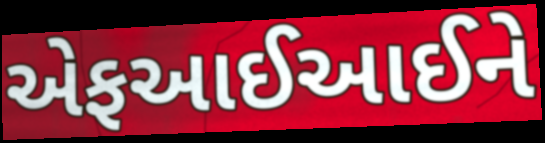
એફઆઈઆઈને